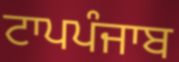
ਟਾਪਪੰਜਾਬ